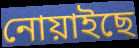
নোয়াইছে